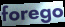
forego